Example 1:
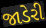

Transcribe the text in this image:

જાડેરી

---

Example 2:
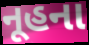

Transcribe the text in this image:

નૂહના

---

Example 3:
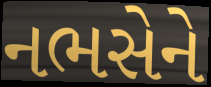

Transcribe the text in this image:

નભસેને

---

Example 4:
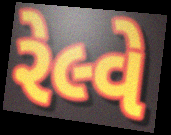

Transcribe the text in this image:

રેલ્વે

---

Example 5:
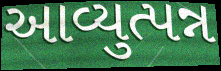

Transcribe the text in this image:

આવ્યુત્પન્ન